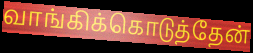
வாங்கிக்கொடுத்தேன்